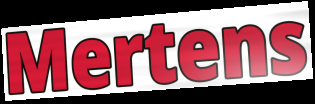
Mertens